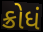
ક્રોધં